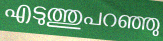
എടുത്തുപറഞ്ഞു